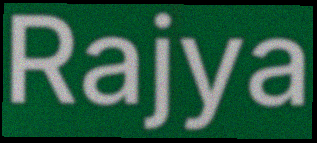
Rajya